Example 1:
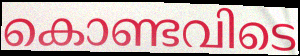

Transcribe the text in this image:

കൊണ്ടവിടെ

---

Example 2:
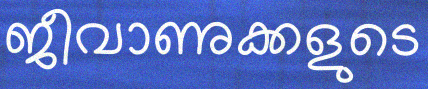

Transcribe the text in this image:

ജീവാണുക്കളുടെ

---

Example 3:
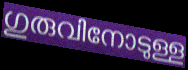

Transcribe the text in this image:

ഗുരുവിനോടുള്ള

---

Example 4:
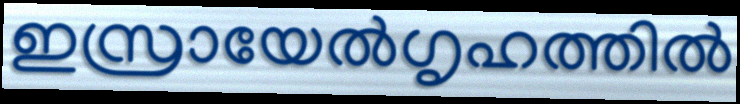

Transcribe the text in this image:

ഇസ്രായേൽഗൃഹത്തിൽ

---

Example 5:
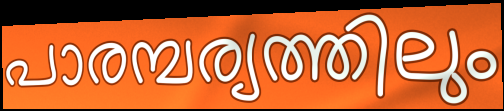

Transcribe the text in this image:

പാരമ്പര്യത്തിലും